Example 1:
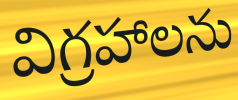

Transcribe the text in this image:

విగ్రహాలను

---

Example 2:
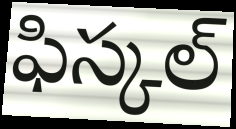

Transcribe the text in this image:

ఫిస్కల్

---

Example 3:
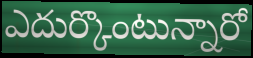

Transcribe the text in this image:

ఎదుర్కొంటున్నారో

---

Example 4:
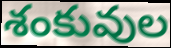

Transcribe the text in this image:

శంకువుల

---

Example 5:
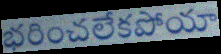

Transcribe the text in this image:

భరించలేకపోయా